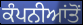
ਕੰਪਨੀਆਂਤੋਂ